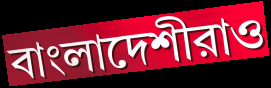
বাংলাদেশীরাও